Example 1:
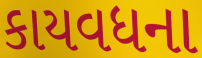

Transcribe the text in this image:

કાયવધના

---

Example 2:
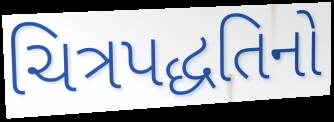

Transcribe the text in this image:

ચિત્રપદ્ધતિનો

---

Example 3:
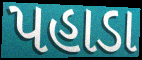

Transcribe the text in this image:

પહાડા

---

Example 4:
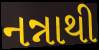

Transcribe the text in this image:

નન્નાથી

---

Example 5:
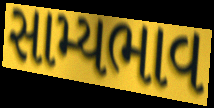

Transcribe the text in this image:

સામ્યભાવ